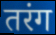
तरंग